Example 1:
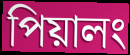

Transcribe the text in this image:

পিয়ালং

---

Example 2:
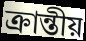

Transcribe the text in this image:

ক্রান্তীয়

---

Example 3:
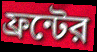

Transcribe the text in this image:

ফ্রন্টের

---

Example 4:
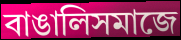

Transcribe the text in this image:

বাঙালিসমাজে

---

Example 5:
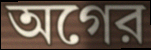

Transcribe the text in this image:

অগের